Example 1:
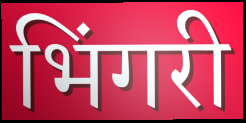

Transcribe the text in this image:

भिंगरी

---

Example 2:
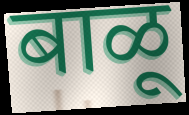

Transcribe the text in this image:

बाळू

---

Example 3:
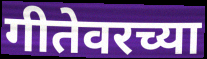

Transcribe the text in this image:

गीतेवरच्या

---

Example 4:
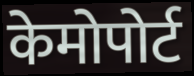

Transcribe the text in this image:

केमोपोर्ट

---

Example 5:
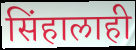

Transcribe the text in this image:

सिंहालाही